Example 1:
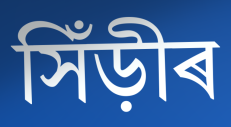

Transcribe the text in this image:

সিঁড়ীৰ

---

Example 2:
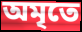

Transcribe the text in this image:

অমৃতে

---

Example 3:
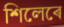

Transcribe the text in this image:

শিলেৰে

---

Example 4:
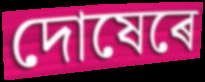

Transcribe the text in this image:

দোষেৰে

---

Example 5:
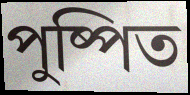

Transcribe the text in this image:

পুষ্পিত